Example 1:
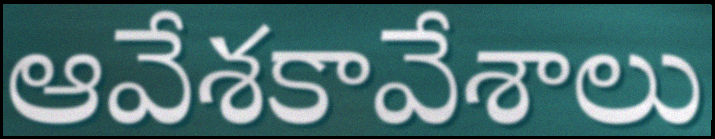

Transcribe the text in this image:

ఆవేశకావేశాలు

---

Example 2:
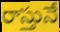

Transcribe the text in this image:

రాస్తునే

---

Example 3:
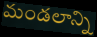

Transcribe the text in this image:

మండలాన్ని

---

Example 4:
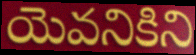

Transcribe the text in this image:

యెవనికిని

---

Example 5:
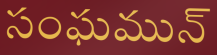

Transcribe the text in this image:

సంఘమున్